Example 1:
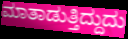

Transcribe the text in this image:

ಮಾತಾಡುತ್ತಿದ್ದುದು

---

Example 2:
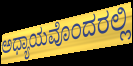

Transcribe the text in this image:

ಅಧ್ಯಾಯವೊಂದರಲ್ಲಿ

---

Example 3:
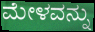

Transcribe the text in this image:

ಮೇಳವನ್ನು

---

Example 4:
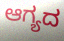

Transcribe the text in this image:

ಆಗ್ಯದ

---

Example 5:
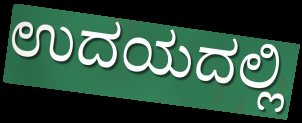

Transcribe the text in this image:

ಉದಯದಲ್ಲಿ